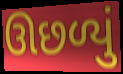
ઊછળ્યું